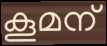
കൂമന്